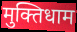
मुक्तिधाम